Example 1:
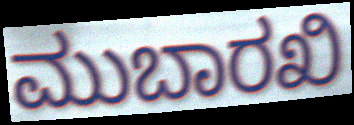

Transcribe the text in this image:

ಮುಬಾರಖಿ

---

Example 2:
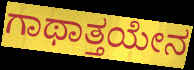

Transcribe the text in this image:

ಗಾಥಾತ್ತಯೇನ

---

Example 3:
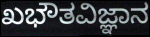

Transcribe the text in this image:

ಖಭೌತವಿಜ್ಞಾನ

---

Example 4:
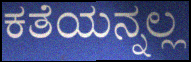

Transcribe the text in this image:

ಕತೆಯನ್ನಲ್ಲ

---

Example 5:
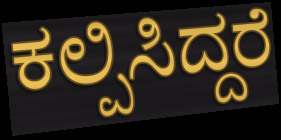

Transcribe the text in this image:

ಕಲ್ಪಿಸಿದ್ದರೆ